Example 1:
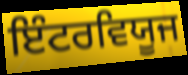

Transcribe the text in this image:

ਇੰਟਰਵਿਯੂਜ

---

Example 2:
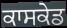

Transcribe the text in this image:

ਕਾਸਕੇਡ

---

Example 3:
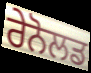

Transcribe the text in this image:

ਰੇਨੋਲਡ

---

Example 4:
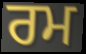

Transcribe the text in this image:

ਰਮ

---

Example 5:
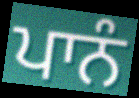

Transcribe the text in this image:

ਪਾਨੰ